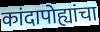
कांदापोह्यांचा